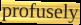
profusely